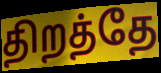
திறத்தே